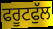
ਫਰੂਟਫੁੱਲ